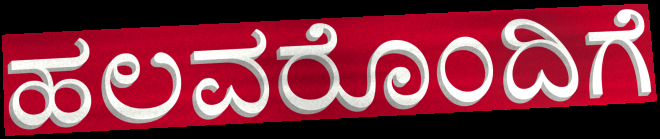
ಹಲವರೊಂದಿಗೆ